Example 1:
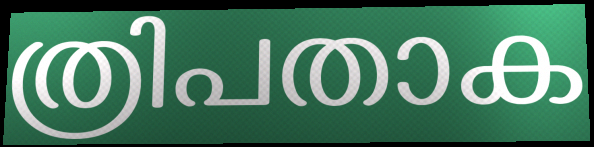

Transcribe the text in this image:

ത്രിപതാക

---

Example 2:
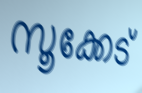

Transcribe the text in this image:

സൂക്കേട്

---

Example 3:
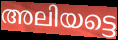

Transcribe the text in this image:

അലിയട്ടെ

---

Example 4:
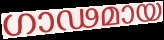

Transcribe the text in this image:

ഗാഢമായ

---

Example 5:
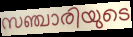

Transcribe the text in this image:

സഞ്ചാരിയുടെ